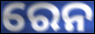
ରେନ